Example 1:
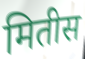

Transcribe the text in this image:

मितीस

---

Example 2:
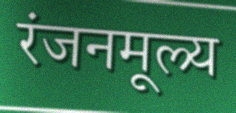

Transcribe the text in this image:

रंजनमूल्य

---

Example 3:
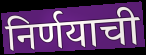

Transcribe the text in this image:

निर्णयाची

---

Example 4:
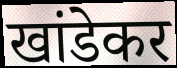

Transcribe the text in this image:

खांडेकर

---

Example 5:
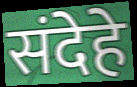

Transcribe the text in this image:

संदेहे